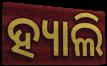
ହ୍ୟାଲି